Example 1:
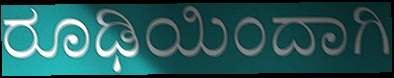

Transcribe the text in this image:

ರೂಢಿಯಿಂದಾಗಿ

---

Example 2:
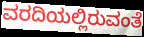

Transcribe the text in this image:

ವರದಿಯಲ್ಲಿರುವಂತೆ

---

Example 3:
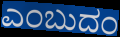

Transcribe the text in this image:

ಎಂಬುದಂ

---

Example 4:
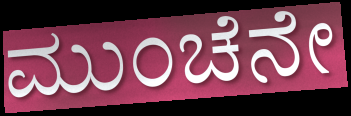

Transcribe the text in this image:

ಮುಂಚೆನೇ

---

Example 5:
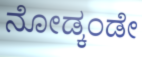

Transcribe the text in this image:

ನೋಡ್ಕಂಡೇ